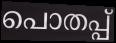
പൊതപ്പ്